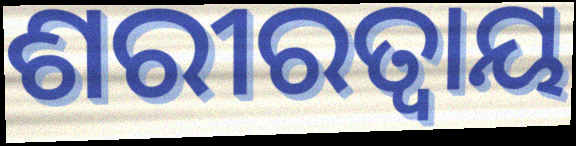
ଶରୀରତ୍ୱାୟ